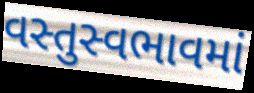
વસ્તુસ્વભાવમાં